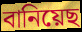
বানিয়েছ